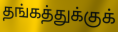
தங்கத்துக்குக்